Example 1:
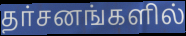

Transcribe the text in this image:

தர்சனங்களில்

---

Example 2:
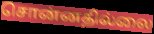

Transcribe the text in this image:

சொன்னதில்லை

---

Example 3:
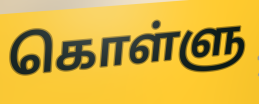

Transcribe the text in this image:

கொள்ளு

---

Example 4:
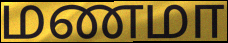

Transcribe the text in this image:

மணமா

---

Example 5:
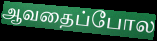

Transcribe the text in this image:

ஆவதைப்போல